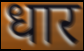
धार